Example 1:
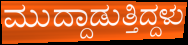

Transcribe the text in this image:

ಮುದ್ದಾಡುತ್ತಿದ್ದಳು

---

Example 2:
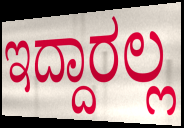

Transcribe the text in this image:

ಇದ್ದಾರಲ್ಲ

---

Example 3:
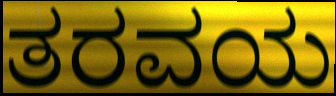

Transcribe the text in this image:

ತರವಯ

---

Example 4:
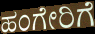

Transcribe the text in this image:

ಹಂಗೇರಿಗೆ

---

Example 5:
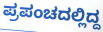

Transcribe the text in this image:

ಪ್ರಪಂಚದಲ್ಲಿದ್ದ